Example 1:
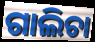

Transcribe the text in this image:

ଗାଲିଚା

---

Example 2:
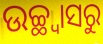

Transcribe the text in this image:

ଉଚ୍ଛ୍ୱାସରୁ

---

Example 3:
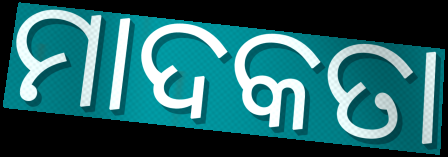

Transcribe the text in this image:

ମାଦକତା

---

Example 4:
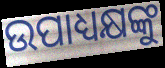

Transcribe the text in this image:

ଉପାଧ୍ୟକ୍ଷଙ୍କୁ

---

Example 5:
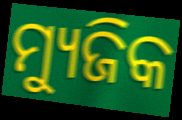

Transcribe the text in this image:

ମ୍ୟୁଜିକ